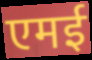
एमई